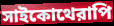
সাইকোথেরাপি